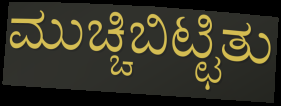
ಮುಚ್ಚಿಬಿಟ್ಟಿತು